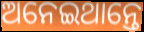
ଅନେଇଥାନ୍ତେ